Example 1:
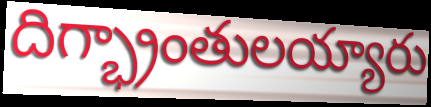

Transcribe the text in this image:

దిగ్భ్రాంతులయ్యారు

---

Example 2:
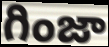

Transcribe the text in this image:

గింజా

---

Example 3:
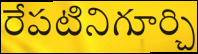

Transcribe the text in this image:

రేపటినిగూర్చి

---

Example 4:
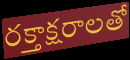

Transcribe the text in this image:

రక్తాక్షరాలతో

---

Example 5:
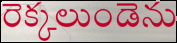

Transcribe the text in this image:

రెక్కలుండెను